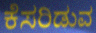
ಕೆಸರಿಡುವ